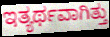
ಇತ್ಯರ್ಥವಾಗಿತ್ತು